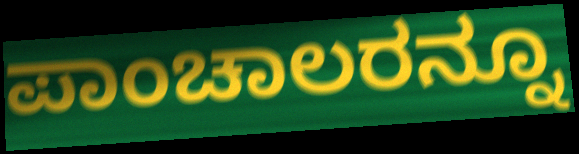
ಪಾಂಚಾಲರನ್ನೂ